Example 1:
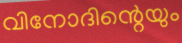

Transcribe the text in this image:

വിനോദിന്റെയും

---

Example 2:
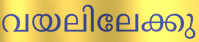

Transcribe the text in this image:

വയലിലേക്കു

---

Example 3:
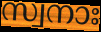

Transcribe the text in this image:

സ്വനാഃ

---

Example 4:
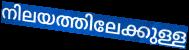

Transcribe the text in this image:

നിലയത്തിലേക്കുള്ള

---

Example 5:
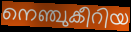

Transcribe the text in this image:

നെഞ്ചുകീറിയ